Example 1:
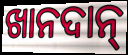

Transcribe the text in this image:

ଖାନଦାନ୍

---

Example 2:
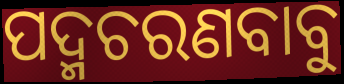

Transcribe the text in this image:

ପଦ୍ମଚରଣବାବୁ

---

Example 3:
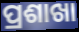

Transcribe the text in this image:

ପ୍ରଶାଖା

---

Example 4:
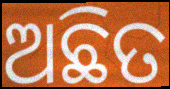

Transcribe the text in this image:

ଅଛିତ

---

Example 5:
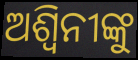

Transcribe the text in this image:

ଅଶ୍ୱିନୀଙ୍କୁ